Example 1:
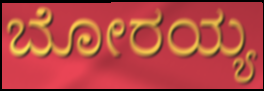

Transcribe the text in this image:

ಬೋರಯ್ಯ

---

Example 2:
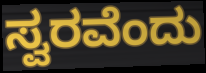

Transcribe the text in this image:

ಸ್ವರವೆಂದು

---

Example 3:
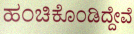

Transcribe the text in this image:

ಹಂಚಿಕೊಂಡಿದ್ದೇವೆ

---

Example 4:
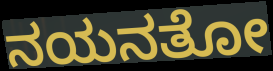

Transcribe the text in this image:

ನಯನತೋ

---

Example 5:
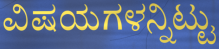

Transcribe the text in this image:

ವಿಷಯಗಳನ್ನಿಟ್ಟು